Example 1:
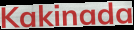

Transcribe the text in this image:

Kakinada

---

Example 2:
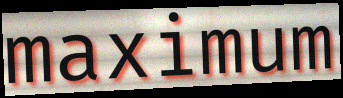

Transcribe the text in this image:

maximum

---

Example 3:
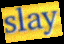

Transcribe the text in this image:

slay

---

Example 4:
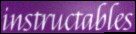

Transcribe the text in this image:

instructables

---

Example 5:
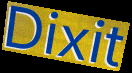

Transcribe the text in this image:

Dixit